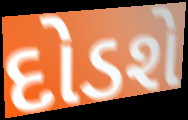
દોડશે